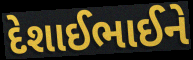
દેશાઈભાઈને